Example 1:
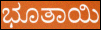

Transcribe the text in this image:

ಭೂತಾಯಿ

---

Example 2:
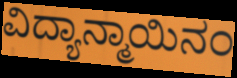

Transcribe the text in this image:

ವಿದ್ಯಾನ್ಮಾಯಿನಂ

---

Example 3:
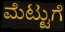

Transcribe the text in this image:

ಮೆಟ್ಟುಗೆ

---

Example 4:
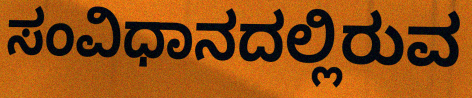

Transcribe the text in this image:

ಸಂವಿಧಾನದಲ್ಲಿರುವ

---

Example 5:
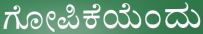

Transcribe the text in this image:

ಗೋಪಿಕೆಯೆಂದು